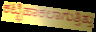
ಕಟ್ಟಿಹಾಕಲಾಗುತ್ತಿತ್ತು